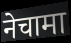
नेचामा